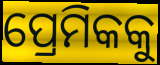
ପ୍ରେମିକକୁ